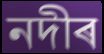
নদীৰ